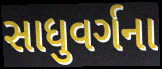
સાધુવર્ગના